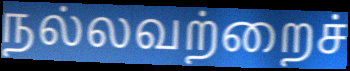
நல்லவற்றைச்